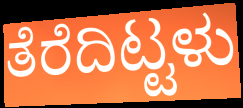
ತೆರೆದಿಟ್ಟಳು